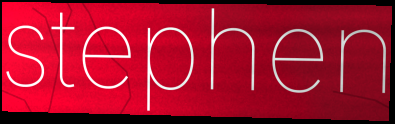
stephen